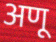
अणू